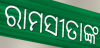
ରାମସୀତାଙ୍କ